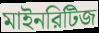
মাইনরিটিজ